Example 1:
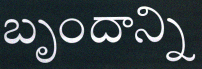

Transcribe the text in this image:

బృందాన్ని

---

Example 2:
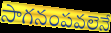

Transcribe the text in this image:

సాగనంపవలెనే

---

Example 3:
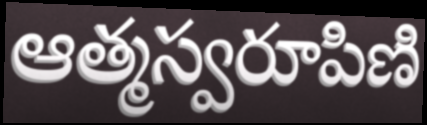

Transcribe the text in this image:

ఆత్మస్వరూపిణి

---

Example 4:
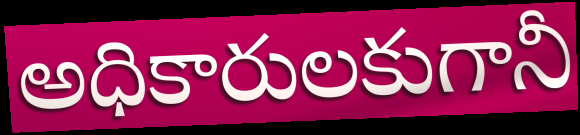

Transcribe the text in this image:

అధికారులకుగానీ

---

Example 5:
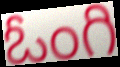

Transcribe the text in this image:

ఓంగి